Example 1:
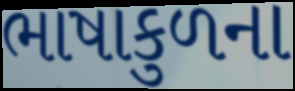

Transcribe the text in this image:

ભાષાકુળના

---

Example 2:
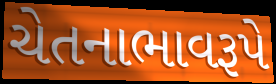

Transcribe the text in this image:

ચેતનાભાવરૂપે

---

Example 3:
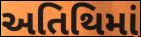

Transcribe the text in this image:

અતિથિમાં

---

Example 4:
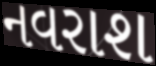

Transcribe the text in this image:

નવરાશ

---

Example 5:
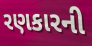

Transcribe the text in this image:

રણકારની